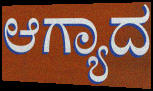
ಆಗ್ಯಾದ